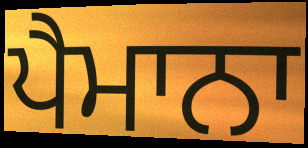
ਪੈਮਾਨਾ